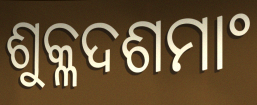
ଶୁକ୍ଳଦଶମାଂ